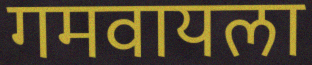
गमवायला